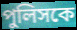
পুলিসকে